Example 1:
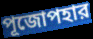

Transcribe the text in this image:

পূজোপহার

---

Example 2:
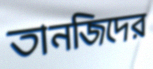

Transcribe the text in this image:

তানজিদের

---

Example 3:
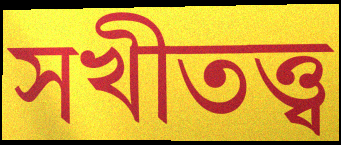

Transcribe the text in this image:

সখীতত্ত্ব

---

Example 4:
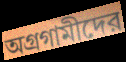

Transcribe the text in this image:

অগ্রগামীদের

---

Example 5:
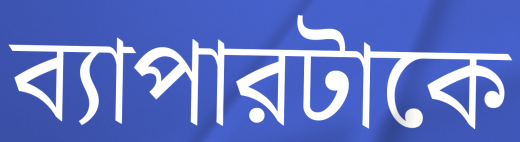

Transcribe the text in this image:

ব্যাপারটাকে